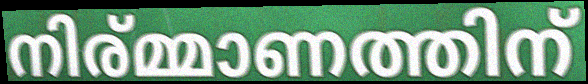
നിര്മ്മാണത്തിന്